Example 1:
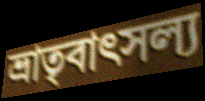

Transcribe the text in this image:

ভ্রাতৃবাৎসল্য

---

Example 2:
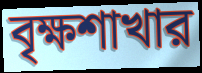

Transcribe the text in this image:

বৃক্ষশাখার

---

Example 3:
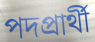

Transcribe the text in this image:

পদপ্রার্থী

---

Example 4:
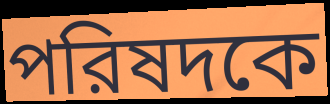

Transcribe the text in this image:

পরিষদকে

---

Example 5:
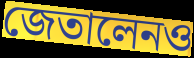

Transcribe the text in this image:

জেতালেনও